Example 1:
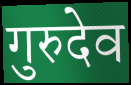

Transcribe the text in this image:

गुरुदेव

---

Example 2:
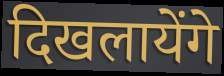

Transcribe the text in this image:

दिखलायेंगे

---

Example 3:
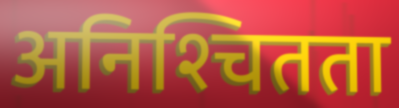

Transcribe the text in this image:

अनिश्चितता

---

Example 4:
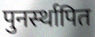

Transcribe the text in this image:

पुनर्स्‍थापित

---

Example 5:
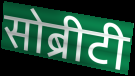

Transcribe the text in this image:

सोब्रीटी